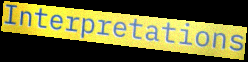
Interpretations